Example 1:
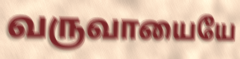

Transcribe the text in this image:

வருவாயையே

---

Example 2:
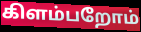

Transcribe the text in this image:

கிளம்பறோம்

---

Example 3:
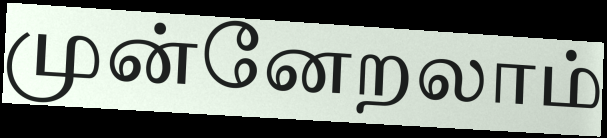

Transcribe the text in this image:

முன்னேறலாம்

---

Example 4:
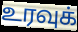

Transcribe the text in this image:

உரவுக்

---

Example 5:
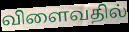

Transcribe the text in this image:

விளைவதில்